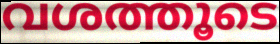
വശത്തൂടെ